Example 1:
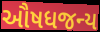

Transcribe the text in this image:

ઔષધજન્ય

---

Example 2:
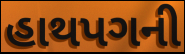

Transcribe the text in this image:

હાથપગની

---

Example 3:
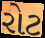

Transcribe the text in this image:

રોટ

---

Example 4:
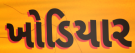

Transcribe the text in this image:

ખોડિયાર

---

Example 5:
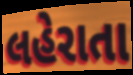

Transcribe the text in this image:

લહેરાતા